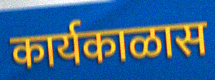
कार्यकाळास